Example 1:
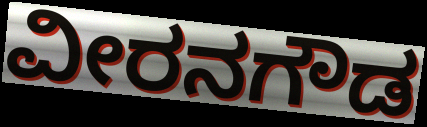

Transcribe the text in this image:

ವೀರನಗೌಡ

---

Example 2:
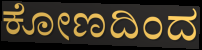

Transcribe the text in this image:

ಕೋಣದಿಂದ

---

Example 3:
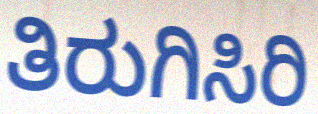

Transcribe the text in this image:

ತಿರುಗಿಸಿರಿ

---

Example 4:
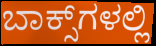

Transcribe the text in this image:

ಬಾಕ್ಸ್‌ಗಳಲ್ಲಿ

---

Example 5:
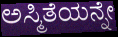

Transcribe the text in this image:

ಅಸ್ಮಿತೆಯನ್ನೇ